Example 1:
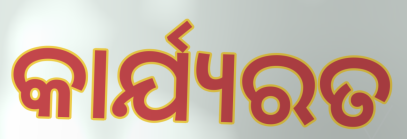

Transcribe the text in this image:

କାର୍ଯ୍ୟରତ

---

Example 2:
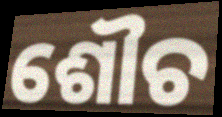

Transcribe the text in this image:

ଶୌଚ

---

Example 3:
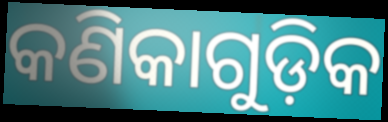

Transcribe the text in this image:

କଣିକାଗୁଡ଼ିକ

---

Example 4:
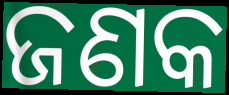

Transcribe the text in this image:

ଜଣକ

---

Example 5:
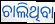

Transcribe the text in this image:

ଚାଲିଥିବା